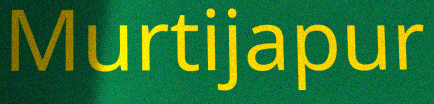
Murtijapur